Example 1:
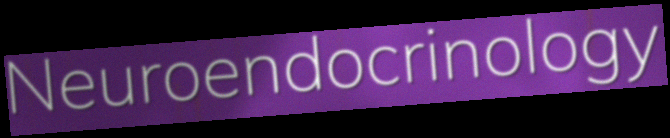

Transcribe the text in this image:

Neuroendocrinology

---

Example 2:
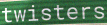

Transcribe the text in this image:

twisters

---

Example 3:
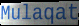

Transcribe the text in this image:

Mulaqat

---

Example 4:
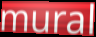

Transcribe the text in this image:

mural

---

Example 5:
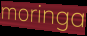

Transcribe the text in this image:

moringa